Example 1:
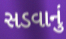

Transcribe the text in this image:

સડવાનું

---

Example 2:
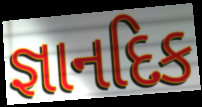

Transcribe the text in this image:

જ્ઞાનદિક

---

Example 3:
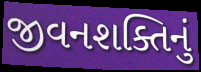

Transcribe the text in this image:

જીવનશક્તિનું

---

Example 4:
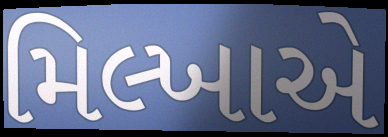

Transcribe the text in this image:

મિલ્ખાએ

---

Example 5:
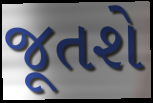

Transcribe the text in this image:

જૂતશે